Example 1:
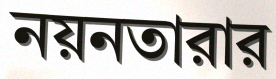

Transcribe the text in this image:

নয়নতারার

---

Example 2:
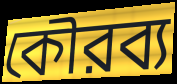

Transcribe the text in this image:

কৌরব্য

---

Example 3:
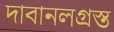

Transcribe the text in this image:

দাবানলগ্রস্ত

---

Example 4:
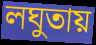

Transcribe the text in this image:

লঘুতায়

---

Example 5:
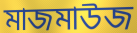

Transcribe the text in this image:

মাজমাউজ